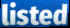
listed